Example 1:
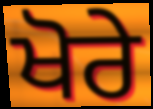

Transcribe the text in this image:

ਖੋਰੇ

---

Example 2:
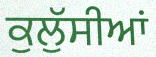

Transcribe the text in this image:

ਕੁਲੁੱਸੀਆਂ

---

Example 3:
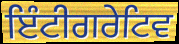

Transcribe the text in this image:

ਇੰਟੀਗਰੇਟਿਵ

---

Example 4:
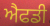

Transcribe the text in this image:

ਐਫਡੀ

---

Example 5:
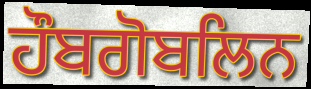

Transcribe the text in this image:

ਹੌਬਗੋਬਲਿਨ